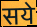
सये